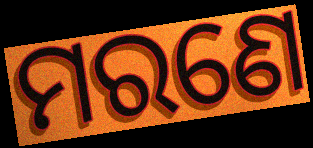
ମରଣେ